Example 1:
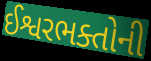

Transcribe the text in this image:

ઈશ્વરભક્તોની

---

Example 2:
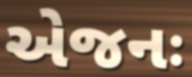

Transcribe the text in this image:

એજનઃ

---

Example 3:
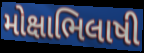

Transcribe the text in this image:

મોક્ષાભિલાષી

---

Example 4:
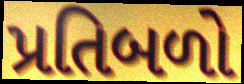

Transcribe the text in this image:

પ્રતિબળો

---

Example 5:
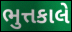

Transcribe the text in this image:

ભુત્તકાલે